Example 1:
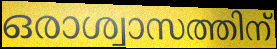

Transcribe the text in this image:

ഒരാശ്വാസത്തിന്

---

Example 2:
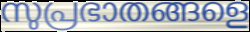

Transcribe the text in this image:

സുപ്രഭാതങ്ങളെ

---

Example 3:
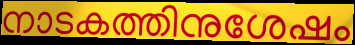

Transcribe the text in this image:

നാടകത്തിനുശേഷം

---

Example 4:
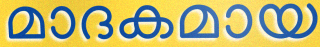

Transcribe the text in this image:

മാദകമായ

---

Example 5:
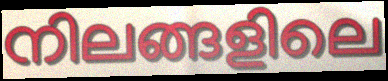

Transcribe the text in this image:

നിലങ്ങളിലെ